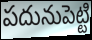
పదునుపెట్టి